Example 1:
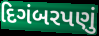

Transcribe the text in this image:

દિગંબરપણું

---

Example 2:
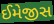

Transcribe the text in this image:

ઈમેજીસ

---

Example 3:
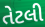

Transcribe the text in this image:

તેટલી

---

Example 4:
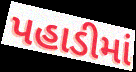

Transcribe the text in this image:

પહાડીમાં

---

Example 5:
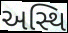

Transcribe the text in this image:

અસ્થિ